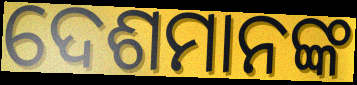
ଦେଶମାନଙ୍କ